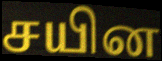
சயின